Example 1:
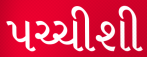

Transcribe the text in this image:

પચ્ચીશી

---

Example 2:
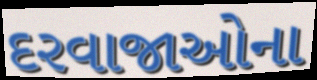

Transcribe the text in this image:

દરવાજાઓના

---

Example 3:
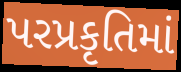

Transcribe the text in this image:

પરપ્રકૃતિમાં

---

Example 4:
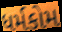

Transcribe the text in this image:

ધર્મકોમ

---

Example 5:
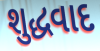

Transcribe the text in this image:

શુદ્ધવાદ